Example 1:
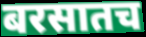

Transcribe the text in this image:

बरसातच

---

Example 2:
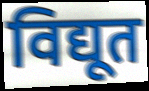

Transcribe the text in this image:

विद्यूत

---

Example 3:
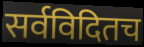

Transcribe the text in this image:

सर्वविदितच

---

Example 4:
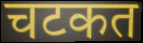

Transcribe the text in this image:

चटकत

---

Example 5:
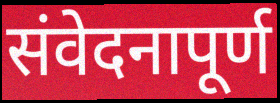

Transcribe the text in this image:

संवेदनापूर्ण